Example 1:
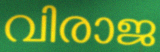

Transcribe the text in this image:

വിരാജ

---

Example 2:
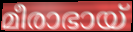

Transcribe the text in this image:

മീരാഭായ്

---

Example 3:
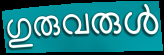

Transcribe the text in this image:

ഗുരുവരുൾ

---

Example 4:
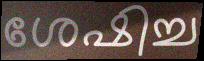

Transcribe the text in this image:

ശേഷിച്ച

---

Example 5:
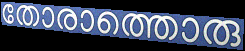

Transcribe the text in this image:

തോരാത്തൊരു